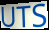
UTS